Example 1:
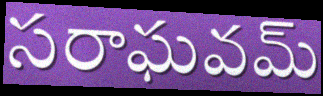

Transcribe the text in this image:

సరాఘవమ్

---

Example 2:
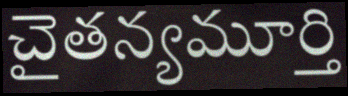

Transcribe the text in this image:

చైతన్యమూర్తి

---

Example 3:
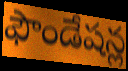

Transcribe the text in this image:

ఫౌండేషన్ల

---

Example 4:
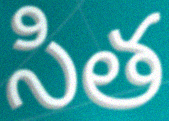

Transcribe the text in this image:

సిత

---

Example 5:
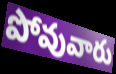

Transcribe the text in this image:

పోవువారు